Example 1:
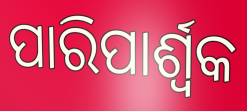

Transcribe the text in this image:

ପାରିପାର୍ଶ୍ବକ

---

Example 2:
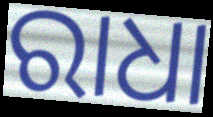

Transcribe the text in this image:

ରାଧା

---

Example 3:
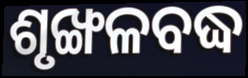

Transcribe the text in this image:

ଶୃଙ୍ଖଳବଦ୍ଧ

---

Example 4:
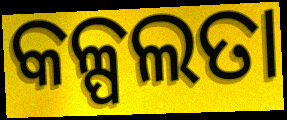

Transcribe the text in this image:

କଳ୍ପଲତା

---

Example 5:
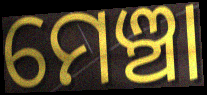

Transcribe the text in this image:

ମେଞ୍ଚା